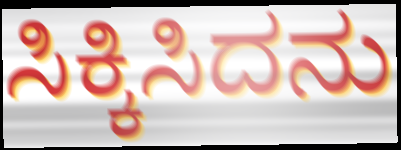
ಸಿಕ್ಕಿಸಿದನು